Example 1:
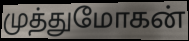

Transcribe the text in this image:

முத்துமோகன்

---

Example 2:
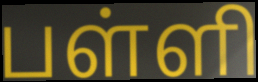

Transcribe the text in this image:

பள்ளி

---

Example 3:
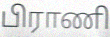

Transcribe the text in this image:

பிராணி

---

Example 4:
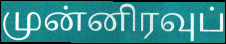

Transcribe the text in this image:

முன்னிரவுப்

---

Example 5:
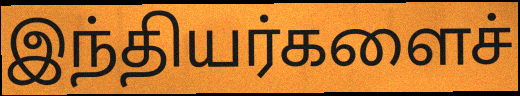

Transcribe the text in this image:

இந்தியர்களைச்